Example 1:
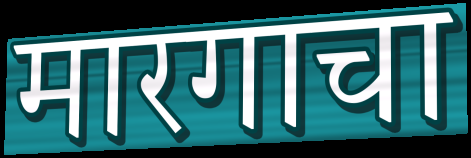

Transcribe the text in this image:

मारगाचा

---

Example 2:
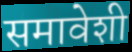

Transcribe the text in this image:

समावेशी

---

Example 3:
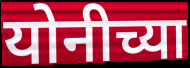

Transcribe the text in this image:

योनीच्या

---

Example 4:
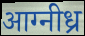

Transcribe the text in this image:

आग्नीध्र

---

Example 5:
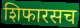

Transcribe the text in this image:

शिफारसच